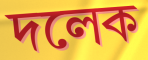
দলেক